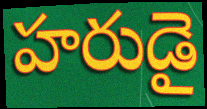
హరుడై